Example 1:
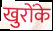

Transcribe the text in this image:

खुरोंके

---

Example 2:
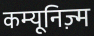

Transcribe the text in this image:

कम्यूनिज़्म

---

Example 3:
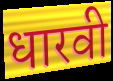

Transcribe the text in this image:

धारवी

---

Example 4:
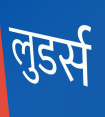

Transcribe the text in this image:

लुडर्स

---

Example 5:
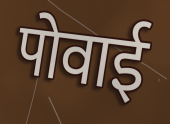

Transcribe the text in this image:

पोवाई